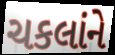
ચકલાંને